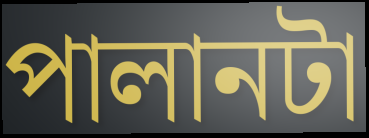
পালানটা